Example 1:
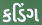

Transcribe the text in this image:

કડિંગ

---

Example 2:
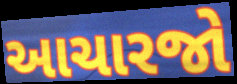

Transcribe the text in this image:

આચારજો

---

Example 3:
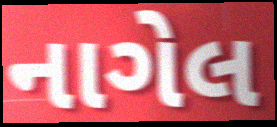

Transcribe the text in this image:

નાગેલ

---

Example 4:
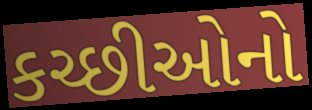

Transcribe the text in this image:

કચ્છીઓનો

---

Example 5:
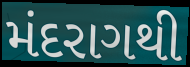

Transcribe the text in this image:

મંદરાગથી